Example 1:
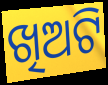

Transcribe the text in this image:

ଖିଅଟି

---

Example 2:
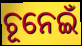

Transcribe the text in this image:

ଚୂନେଇଁ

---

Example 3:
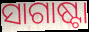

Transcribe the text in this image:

ସାଗାଷ୍ଟା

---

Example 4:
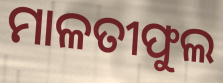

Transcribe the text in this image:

ମାଳତୀଫୁଲ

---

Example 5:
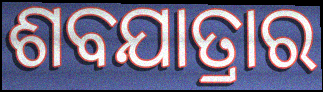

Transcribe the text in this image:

ଶବଯାତ୍ରାର